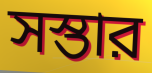
সস্তার